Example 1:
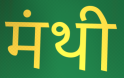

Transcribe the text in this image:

मंथी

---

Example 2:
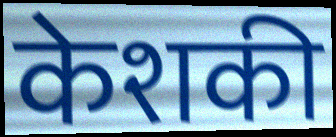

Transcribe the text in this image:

केशकी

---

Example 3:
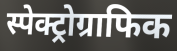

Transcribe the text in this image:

स्पेक्ट्रोग्राफिक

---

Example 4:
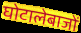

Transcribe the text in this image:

घोटालेबाजों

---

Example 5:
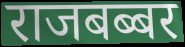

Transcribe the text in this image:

राजबब्बर